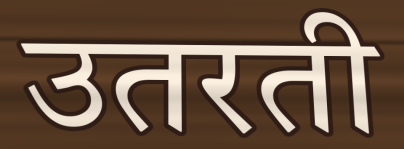
उतरती